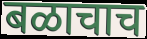
बळाचाच